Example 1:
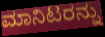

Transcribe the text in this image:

ಮಾನಿಟರನ್ನು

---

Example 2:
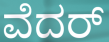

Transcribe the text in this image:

ವೆದರ್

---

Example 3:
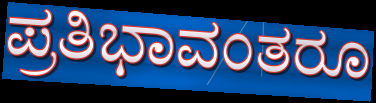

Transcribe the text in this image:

ಪ್ರತಿಭಾವಂತರೂ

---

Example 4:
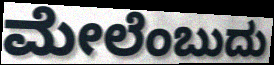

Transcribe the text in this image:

ಮೇಲೆಂಬುದು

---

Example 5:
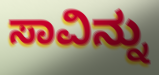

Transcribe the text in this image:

ಸಾವಿನ್ನು